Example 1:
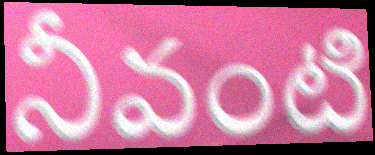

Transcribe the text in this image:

నీవంటి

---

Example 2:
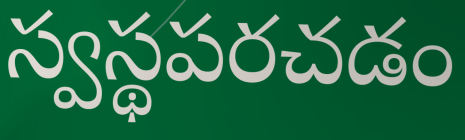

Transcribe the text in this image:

స్వస్థపరచడం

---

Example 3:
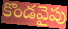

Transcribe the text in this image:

కొండవైపు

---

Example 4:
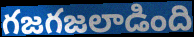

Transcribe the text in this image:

గజగజలాడింది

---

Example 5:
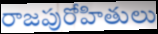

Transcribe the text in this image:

రాజపురోహితులు